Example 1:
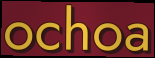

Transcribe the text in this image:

ochoa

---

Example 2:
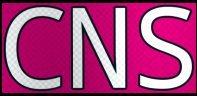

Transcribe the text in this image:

CNS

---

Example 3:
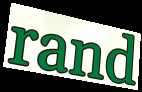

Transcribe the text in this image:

rand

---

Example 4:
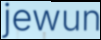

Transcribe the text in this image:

jewun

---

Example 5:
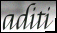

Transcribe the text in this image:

aditi